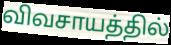
விவசாயத்தில்